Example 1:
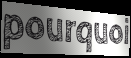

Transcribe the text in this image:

pourquoi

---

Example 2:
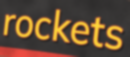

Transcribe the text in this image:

rockets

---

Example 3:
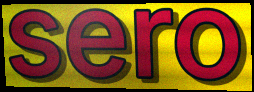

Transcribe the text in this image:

sero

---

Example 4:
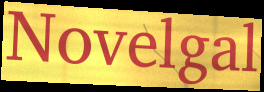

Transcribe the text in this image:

Novelgal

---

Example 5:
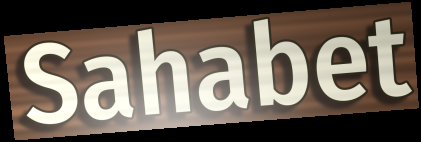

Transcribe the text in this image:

Sahabet